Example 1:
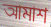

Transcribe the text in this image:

আমাশ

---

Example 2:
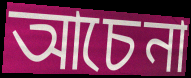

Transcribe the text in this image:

আচেনা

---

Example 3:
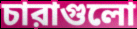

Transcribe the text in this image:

চারাগুলো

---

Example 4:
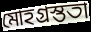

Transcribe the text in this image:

মোহগ্রস্ততা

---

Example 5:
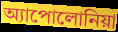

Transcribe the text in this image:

অ্যাপোলোনিয়া